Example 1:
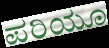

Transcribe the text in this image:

ಪರಿಯೂ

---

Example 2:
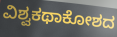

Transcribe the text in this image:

ವಿಶ್ವಕಥಾಕೋಶದ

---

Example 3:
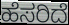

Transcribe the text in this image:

ಹೆಸರಿದೆ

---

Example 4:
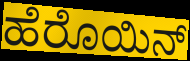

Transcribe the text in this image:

ಹೆರೊಯಿನ್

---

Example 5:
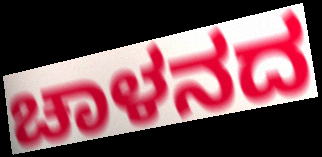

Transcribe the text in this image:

ಚಾಳನದ